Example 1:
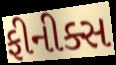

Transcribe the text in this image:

ફીનીક્સ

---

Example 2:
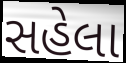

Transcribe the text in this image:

સહેલા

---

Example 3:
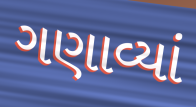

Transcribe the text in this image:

ગણાવ્યાં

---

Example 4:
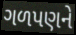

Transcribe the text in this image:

ગળપણને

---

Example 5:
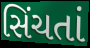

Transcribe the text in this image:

સિંચતાં